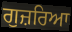
ਗੁਜ਼ਰਿਆ